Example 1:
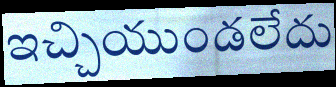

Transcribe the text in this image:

ఇచ్చియుండలేదు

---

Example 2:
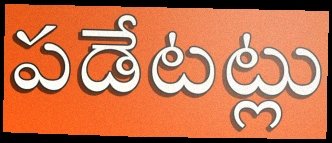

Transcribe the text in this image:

పడేటట్లు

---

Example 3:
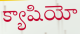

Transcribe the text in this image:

క్యాషియో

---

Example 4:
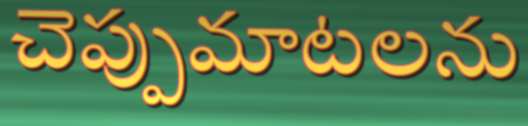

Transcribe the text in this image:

చెప్పుమాటలను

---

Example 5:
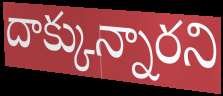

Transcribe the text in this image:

దాక్కున్నారని